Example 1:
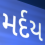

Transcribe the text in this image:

મર્દય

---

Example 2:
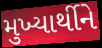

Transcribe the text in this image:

મુખ્યાર્થીને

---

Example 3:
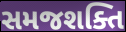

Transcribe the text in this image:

સમજશક્તિ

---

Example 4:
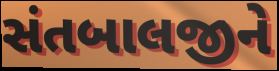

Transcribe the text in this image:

સંતબાલજીને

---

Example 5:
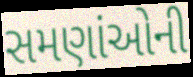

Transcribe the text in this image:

સમણાંઓની